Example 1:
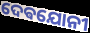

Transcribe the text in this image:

ଦେଵଯୋନୀ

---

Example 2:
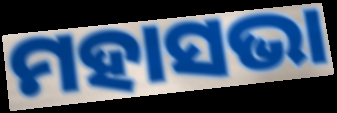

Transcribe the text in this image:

ମହାସଭା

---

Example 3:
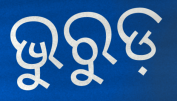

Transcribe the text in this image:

ଭୁରୁଡ଼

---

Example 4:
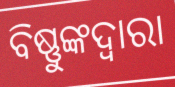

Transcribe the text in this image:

ବିଷ୍ଣୁଙ୍କଦ୍ୱାରା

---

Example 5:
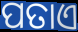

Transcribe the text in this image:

ପତାଏ